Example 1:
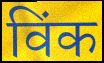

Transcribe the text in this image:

विंक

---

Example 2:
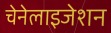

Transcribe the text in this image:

चेनेलाइजेशन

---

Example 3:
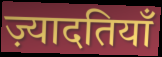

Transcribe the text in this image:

ज़्यादतियाँ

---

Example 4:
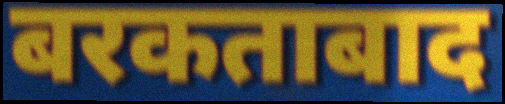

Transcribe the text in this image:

बरकताबाद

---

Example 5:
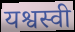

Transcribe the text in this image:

यश्वस्वी